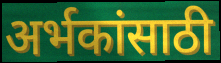
अर्भकांसाठी